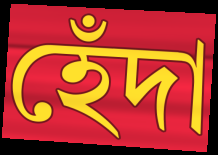
হেঁদা